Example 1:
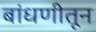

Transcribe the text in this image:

बांधणीतून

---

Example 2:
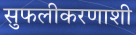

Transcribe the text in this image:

सुफलीकरणाशी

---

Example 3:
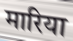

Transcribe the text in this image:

मारिया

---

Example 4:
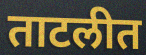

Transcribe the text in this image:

ताटलीत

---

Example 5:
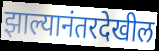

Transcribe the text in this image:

झाल्यानंतरदेखील